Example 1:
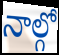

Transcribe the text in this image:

నాల్గో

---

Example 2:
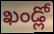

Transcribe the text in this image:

ఖండ్లో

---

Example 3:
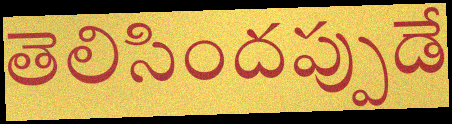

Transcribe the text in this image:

తెలిసిందప్పుడే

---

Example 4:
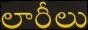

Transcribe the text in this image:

లారీలు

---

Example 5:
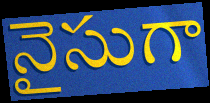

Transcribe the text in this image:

నైసుగా